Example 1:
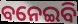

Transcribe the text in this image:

ବନେଇବି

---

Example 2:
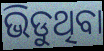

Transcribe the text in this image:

ଭିଡୁଥିବା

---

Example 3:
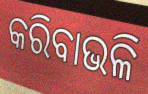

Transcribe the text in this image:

କରିବାଭଳି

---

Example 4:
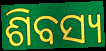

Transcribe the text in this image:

ଶିବସ୍ଯ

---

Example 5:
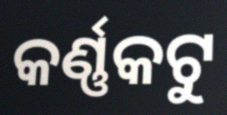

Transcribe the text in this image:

କର୍ଣ୍ଣକଟୁ